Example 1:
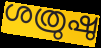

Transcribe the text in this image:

ശത്രുഷു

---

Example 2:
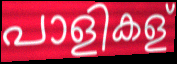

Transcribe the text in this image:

പാളികള്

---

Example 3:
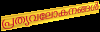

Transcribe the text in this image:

പ്രത്യവലോകനങ്ങൾ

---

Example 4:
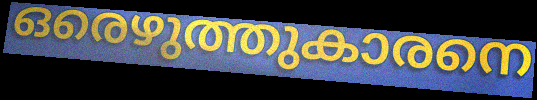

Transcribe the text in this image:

ഒരെഴുത്തുകാരനെ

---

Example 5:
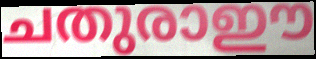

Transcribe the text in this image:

ചതുരാഈ